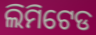
ଲିମିଟେଡ